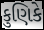
કુણિકે